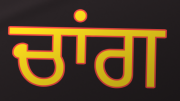
ਚਾਂਗ